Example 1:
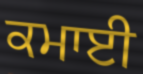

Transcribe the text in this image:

ਕਮਾਈ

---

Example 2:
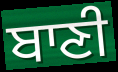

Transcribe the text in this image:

ਬਾਣੀ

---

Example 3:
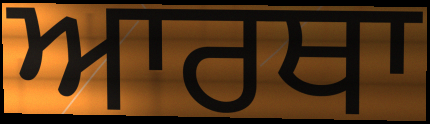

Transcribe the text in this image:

ਆਰਥਾ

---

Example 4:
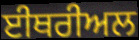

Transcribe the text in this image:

ਈਥਰੀਅਲ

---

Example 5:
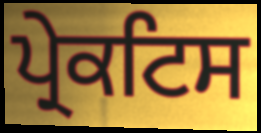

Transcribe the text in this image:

ਪ੍ਰੇਕਟਿਸ